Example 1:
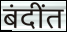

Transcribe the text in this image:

बंदींत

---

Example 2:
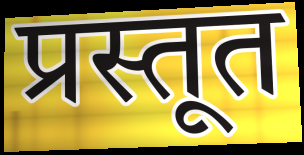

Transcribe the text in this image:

प्रस्तूत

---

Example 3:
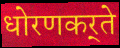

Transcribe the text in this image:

धोरणकर्ते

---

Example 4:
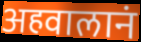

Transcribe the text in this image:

अहवालानं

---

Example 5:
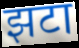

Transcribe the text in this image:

झटा